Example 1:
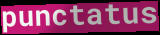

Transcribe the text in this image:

punctatus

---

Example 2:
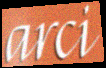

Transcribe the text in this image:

arci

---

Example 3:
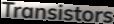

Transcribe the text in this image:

Transistors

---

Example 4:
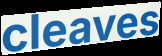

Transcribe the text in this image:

cleaves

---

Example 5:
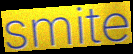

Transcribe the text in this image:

smite